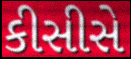
કીસીસે